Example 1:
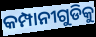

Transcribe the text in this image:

କମ୍ପାନୀଗୁଡିକୁ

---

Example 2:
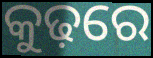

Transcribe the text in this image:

କୁଢ଼ରେ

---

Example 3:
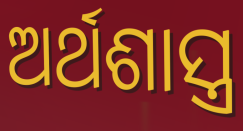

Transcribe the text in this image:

ଅର୍ଥଶାସ୍ତ୍ର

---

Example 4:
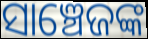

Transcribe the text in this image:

ସାଞ୍ଚେଜଙ୍କ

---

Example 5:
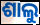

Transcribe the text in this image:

ଶାଲୁ